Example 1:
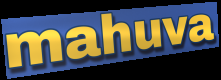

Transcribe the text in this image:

mahuva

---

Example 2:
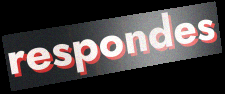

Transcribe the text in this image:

respondes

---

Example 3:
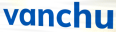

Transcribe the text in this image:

vanchu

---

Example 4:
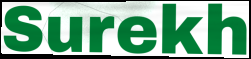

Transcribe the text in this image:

Surekh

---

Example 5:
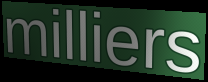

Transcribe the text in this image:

milliers